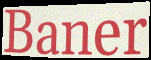
Baner